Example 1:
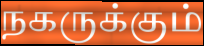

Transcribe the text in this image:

நகருக்கும்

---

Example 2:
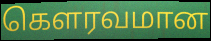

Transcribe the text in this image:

கெளரவமான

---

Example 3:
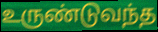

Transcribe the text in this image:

உருண்டுவந்த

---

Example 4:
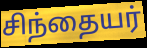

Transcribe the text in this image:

சிந்தையர்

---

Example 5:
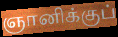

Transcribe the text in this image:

ஞானிக்குப்